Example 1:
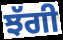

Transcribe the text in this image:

ਝੱਗੀ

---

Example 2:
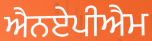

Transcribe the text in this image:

ਐਨਏਪੀਐਮ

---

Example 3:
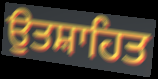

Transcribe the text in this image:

ਉੁਤਸ਼ਾਹਿਤ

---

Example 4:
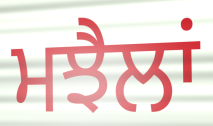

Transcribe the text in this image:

ਮਝੈਲਾਂ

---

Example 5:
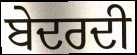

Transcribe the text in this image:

ਬੇਦਰਦੀ